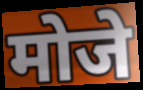
मोजे